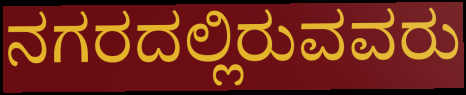
ನಗರದಲ್ಲಿರುವವರು